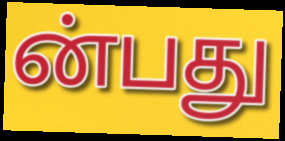
ன்பது